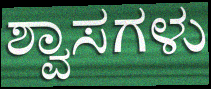
ಶ್ವಾಸಗಳು